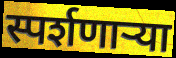
स्पर्शणाऱ्या